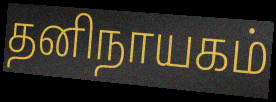
தனிநாயகம்